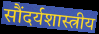
सौंदर्यशास्त्रीय